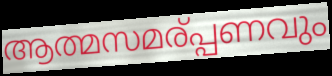
ആത്മസമര്പ്പണവും